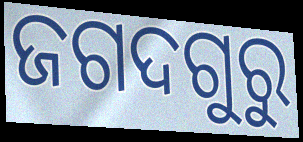
ଜଗଦଗୁରୁ